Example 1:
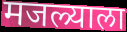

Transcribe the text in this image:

मजल्याला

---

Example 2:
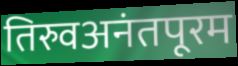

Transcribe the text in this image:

तिरुवअनंतपूरम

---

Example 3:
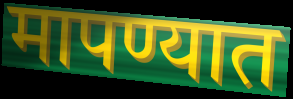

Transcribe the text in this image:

मापण्यात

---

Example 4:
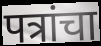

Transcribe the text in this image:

पत्रांचा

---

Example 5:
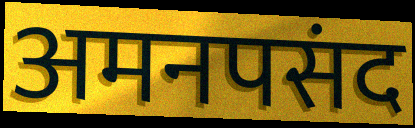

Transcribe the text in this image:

अमनपसंद